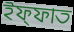
ইফ্ফাত